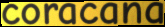
coracana